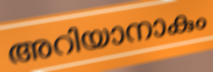
അറിയാനാകും